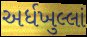
અર્ધખુલ્લાં